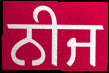
ਨੀਜ